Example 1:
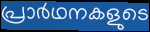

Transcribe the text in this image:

പ്രാർഥനകളുടെ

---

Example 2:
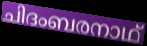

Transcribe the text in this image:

ചിദംബരനാഥ്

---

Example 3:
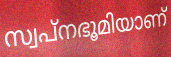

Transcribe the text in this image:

സ്വപ്നഭൂമിയാണ്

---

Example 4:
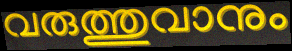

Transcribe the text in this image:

വരുത്തുവാനും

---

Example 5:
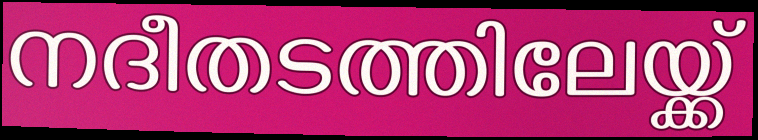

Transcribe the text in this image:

നദീതടത്തിലേയ്ക്ക്